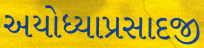
અયોધ્યાપ્રસાદજી